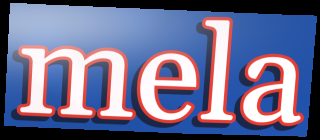
mela